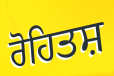
ਰੋਹਿਤਸ਼